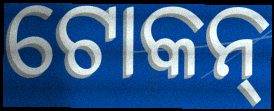
ଟୋକନ୍